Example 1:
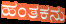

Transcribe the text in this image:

ಹಂತಕನು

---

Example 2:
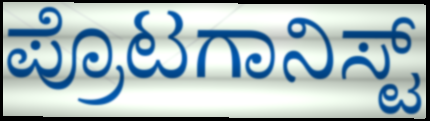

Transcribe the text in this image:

ಪ್ರೊಟಗಾನಿಸ್ಟ್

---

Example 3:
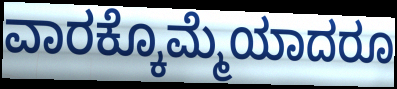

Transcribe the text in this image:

ವಾರಕ್ಕೊಮ್ಮೆಯಾದರೂ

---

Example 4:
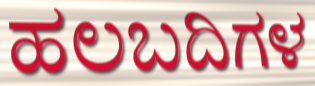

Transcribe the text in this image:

ಹಲಬದಿಗಳ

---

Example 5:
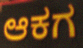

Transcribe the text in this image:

ಆಕಗ